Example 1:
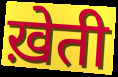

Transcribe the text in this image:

ख़ेती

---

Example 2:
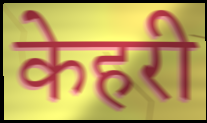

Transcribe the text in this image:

केहरी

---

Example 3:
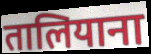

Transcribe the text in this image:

तालियाना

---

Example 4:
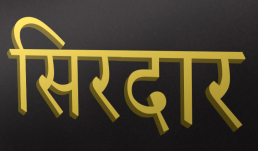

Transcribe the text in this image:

सिरदार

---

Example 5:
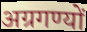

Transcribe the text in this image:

अग्रगण्यों